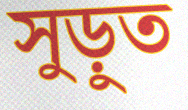
সুড়ুত